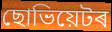
ছোভিয়েটৰ